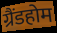
ग्रैंडहोम